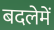
बदलेमें